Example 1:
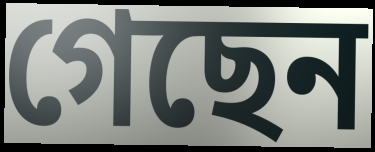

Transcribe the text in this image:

গেছেন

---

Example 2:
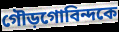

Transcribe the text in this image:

গৌড়গোবিন্দকে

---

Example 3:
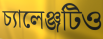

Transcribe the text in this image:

চ্যালেঞ্জটিও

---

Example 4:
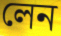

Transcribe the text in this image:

লেন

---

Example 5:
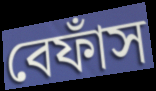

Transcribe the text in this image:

বেফাঁস